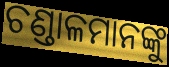
ଚଣ୍ଡାଳମାନଙ୍କୁ